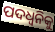
ପଦଧ୍ୱନିକୁ